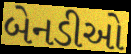
બેનડીઓ